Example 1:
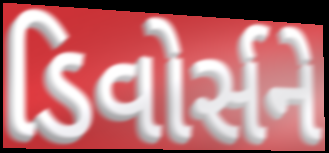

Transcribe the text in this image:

ડિવોર્સને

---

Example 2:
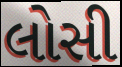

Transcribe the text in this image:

લોસી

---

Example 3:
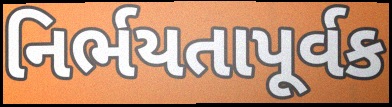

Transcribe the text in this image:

નિર્ભયતાપૂર્વક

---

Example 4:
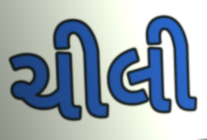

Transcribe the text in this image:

ચીલી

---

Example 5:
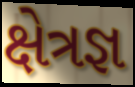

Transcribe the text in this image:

ક્ષેત્રજ્ઞ